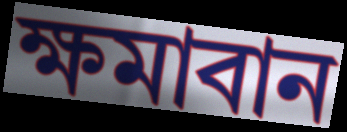
ক্ষমাবান